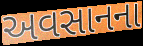
અવસાનના